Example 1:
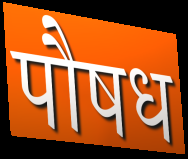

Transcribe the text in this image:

पौषध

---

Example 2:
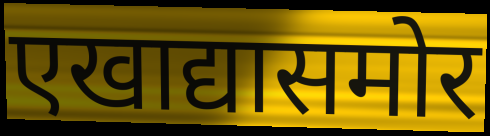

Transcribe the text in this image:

एखाद्यासमोर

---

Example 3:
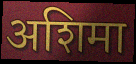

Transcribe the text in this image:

अशिमा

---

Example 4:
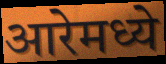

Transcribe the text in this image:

आरेमध्ये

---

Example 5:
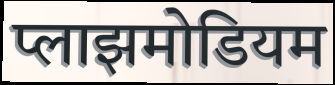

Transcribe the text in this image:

प्लाझमोडियम